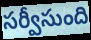
సర్వీసుంది